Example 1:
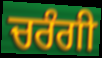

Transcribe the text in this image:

ਚਰੰਗੀ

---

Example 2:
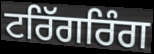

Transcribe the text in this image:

ਟਰਿੱਗਰਿੰਗ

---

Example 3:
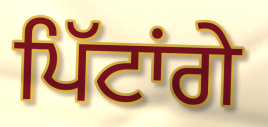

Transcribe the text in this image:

ਪਿੱਟਾਂਗੇ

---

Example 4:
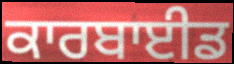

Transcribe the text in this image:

ਕਾਰਬਾਈਡ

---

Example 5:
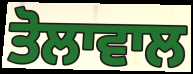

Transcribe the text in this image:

ਤੋਲਾਵਾਲ